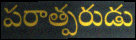
పరాత్పరుడు